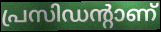
പ്രസിഡന്റാണ്